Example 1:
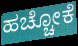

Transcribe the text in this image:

ಹಚ್ಚೋಕೆ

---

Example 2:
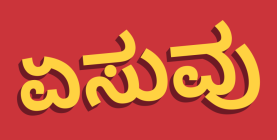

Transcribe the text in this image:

ಏಸುವು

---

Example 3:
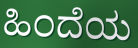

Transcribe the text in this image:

ಹಿಂದೆಯ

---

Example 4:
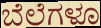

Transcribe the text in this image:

ಬೆಲೆಗಳೂ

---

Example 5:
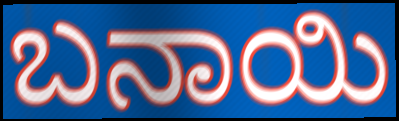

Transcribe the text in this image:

ಬನಾಯಿ